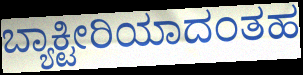
ಬ್ಯಾಕ್ಟೀರಿಯಾದಂತಹ